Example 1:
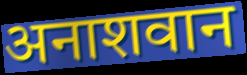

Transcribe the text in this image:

अनाशवान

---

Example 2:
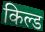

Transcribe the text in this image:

किल्ड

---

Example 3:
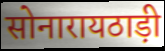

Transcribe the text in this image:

सोनारायठाड़ी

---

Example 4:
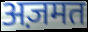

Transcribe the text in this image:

अज़मत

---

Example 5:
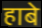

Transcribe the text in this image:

हाबे